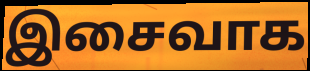
இசைவாக